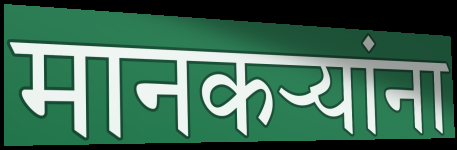
मानकऱ्यांना